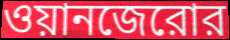
ওয়ানজেরোর